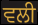
ਵਲੀ